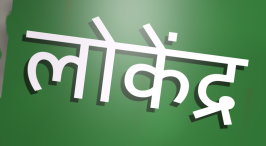
लोकेंद्र